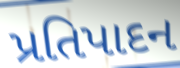
પ્રતિપાદન